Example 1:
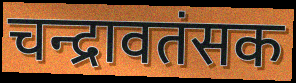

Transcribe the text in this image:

चन्द्रावतंसक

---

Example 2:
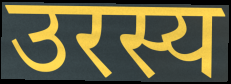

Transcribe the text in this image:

उरस्य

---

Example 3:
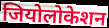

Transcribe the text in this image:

जियोलोकेशन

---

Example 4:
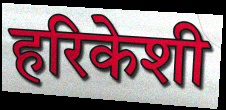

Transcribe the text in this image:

हरिकेशी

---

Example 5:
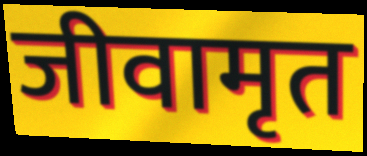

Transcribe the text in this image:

जीवामृत